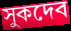
সুকদেব